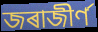
জৰাজীৰ্ণ